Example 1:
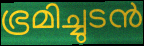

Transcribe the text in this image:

ഭ്രമിച്ചുടൻ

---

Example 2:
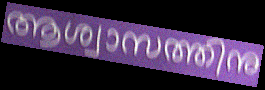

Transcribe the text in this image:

ആശ്വാസത്തിനു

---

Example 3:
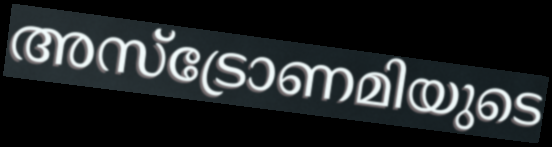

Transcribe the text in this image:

അസ്ട്രോണമിയുടെ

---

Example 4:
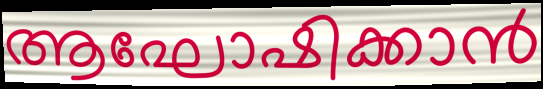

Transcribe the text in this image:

ആഘോഷിക്കാൻ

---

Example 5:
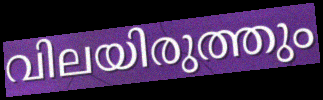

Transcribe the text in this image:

വിലയിരുത്തും